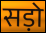
सड़ो